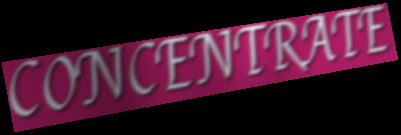
CONCENTRATE